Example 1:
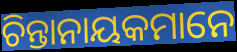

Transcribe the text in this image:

ଚିନ୍ତାନାୟକମାନେ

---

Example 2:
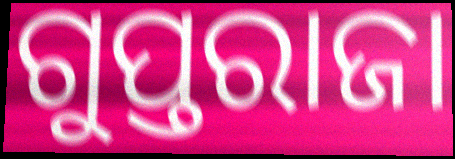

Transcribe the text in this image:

ଗୁପ୍ତରାଜା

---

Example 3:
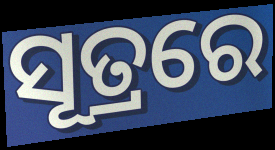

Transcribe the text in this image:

ସୂତ୍ରରେ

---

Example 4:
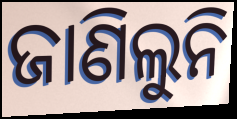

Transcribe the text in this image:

ଜାଣିଲୁନି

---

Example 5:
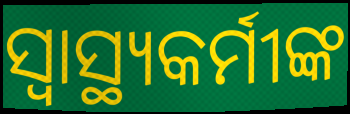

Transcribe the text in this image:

ସ୍ବାସ୍ଥ୍ୟକର୍ମୀଙ୍କ